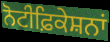
ਨੋਟੀਫ਼ਿਕੇਸ਼ਨਾਂ